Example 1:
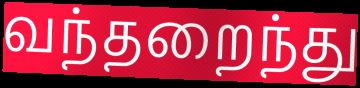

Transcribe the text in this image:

வந்தறைந்து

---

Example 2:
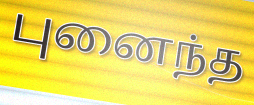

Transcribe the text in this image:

புனைந்த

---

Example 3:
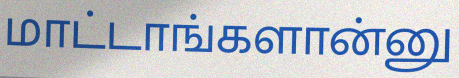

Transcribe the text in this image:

மாட்டாங்களான்னு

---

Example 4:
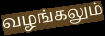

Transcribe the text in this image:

வழங்கலும்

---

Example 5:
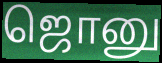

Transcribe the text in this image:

ஜொனு